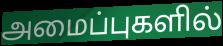
அமைப்புகளில்